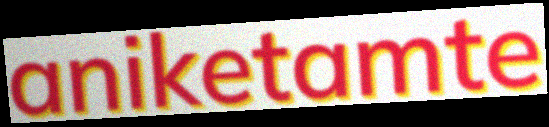
aniketamte